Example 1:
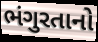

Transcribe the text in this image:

ભંગુરતાનો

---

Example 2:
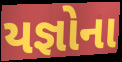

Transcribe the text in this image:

યજ્ઞોના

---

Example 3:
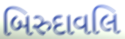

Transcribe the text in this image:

બિરુદાવલિ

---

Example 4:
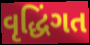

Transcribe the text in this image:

વૃદ્ધિંગત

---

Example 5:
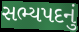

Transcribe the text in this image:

સભ્યપદનું